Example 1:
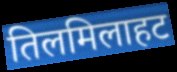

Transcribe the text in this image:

तिलमिलाहट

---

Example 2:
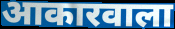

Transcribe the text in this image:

आकारवाला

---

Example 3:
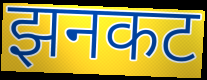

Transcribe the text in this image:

झनकट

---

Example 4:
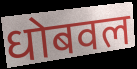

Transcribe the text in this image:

धोबवल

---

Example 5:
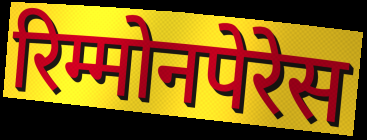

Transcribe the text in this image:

रिम्मोनपेरेस